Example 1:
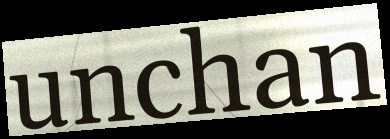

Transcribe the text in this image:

unchan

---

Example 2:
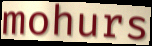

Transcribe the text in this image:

mohurs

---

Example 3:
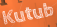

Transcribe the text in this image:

Kutub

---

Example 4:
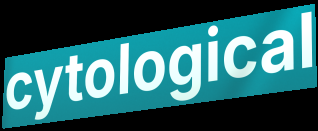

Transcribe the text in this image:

cytological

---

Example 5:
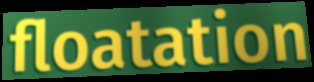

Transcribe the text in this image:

floatation